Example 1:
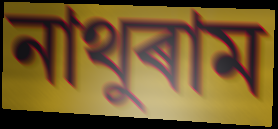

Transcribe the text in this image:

নাথুৰাম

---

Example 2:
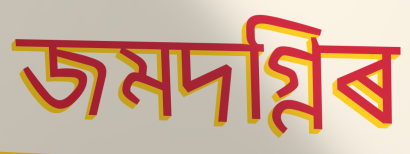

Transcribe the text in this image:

জমদগ্নিৰ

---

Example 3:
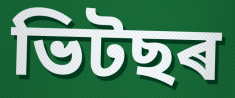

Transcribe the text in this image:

ভিটছৰ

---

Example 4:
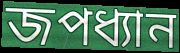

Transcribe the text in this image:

জপধ্যান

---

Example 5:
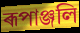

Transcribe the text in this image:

ৰূপাঞ্জলি